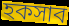
হকসাব